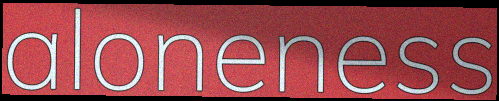
aloneness